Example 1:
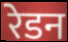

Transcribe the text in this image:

रेडन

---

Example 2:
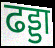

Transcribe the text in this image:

ढड्डा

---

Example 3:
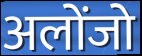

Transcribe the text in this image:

अलोंजो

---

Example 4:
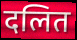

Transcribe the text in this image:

दलित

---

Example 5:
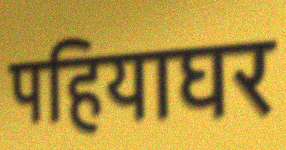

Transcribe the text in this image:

पहियाघर